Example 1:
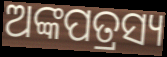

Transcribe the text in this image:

ଅଙ୍କପତ୍ରସ୍ୟ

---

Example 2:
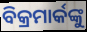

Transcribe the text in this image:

ବିକ୍ରମାର୍କଙ୍କୁ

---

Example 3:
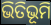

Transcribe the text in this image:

ଭିତିଭୂମି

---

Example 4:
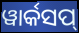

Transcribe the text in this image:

ୱାର୍କସପ୍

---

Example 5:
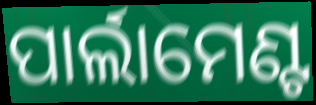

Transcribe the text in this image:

ପାର୍ଲାମେଣ୍ଟ